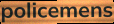
policemens